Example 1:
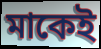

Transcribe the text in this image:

মাকেই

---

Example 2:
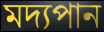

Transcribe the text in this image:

মদ্যপান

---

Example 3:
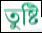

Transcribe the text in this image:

তুষ্টি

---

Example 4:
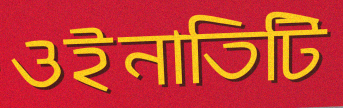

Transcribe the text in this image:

ওইনাতিটি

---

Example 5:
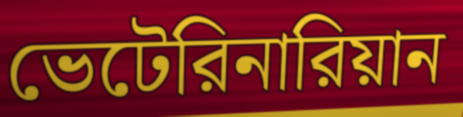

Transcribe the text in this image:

ভেটেরিনারিয়ান